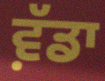
ਵ਼ੱਡਾ